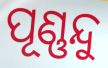
ପୂଣ୍ଣନ୍ଦୁ